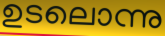
ഉടലൊന്നു